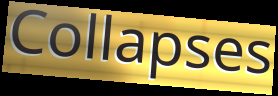
Collapses